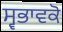
ਸ੍ਵਭਾਵਕੋ